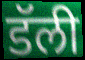
डॅली